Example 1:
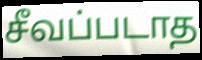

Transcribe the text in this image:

சீவப்படாத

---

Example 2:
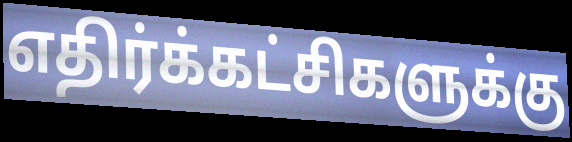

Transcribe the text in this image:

எதிர்க்கட்சிகளுக்கு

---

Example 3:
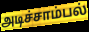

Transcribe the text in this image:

அடிச்சாம்பல்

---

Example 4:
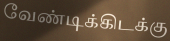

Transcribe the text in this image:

வேண்டிக்கிடக்கு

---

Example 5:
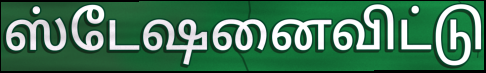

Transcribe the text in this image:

ஸ்டேஷனைவிட்டு